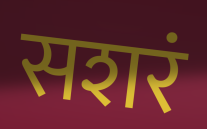
सशरं